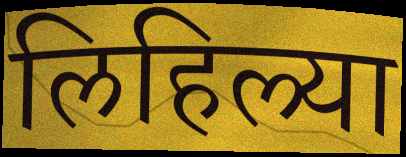
लिहिल्या